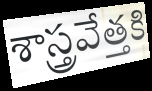
శాస్త్రవేత్తకి